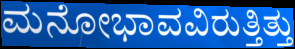
ಮನೋಭಾವವಿರುತ್ತಿತ್ತು